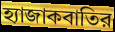
হ্যাজাকবাতির